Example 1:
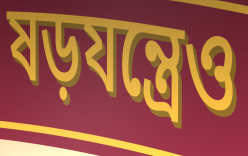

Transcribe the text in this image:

ষড়যন্ত্রেও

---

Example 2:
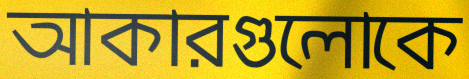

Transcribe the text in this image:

আকারগুলোকে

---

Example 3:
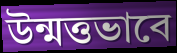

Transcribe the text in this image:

উন্মত্তভাবে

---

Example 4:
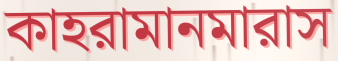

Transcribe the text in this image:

কাহরামানমারাস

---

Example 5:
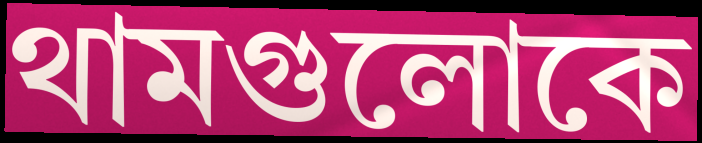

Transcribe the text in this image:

থামগুলোকে